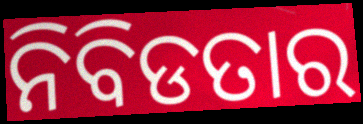
ନିବିଡତାର